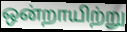
ஒன்றாயிற்று